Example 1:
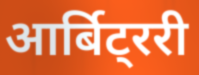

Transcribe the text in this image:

आर्बिट्ररी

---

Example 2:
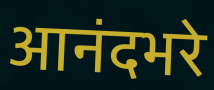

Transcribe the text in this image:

आनंदभरे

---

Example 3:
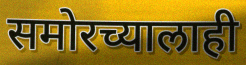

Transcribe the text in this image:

समोरच्यालाही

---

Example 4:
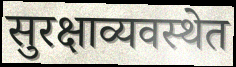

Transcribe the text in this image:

सुरक्षाव्यवस्थेत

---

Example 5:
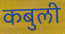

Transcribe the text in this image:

कबुली